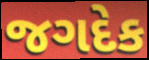
જગદેક